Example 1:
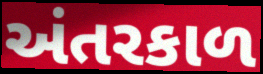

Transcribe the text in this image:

અંતરકાળ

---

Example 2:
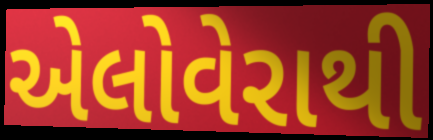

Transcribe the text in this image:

એલોવેરાથી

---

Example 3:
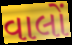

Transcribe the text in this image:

વાલોં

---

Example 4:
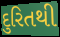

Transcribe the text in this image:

દુરિતથી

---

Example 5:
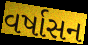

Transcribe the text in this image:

વર્ષાસન